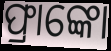
ଫ୍ରାଙ୍କୋ